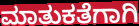
ಮಾತುಕತೆಗಾಗಿ